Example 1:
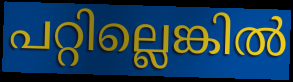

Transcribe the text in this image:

പറ്റില്ലെങ്കിൽ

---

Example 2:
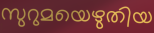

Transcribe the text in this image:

സുറുമയെഴുതിയ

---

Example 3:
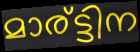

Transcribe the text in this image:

മാര്ട്ടിന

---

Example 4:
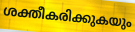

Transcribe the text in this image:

ശക്തീകരിക്കുകയും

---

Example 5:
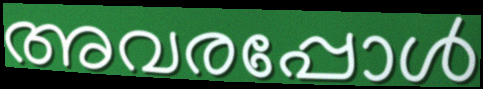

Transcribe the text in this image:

അവരപ്പോൾ